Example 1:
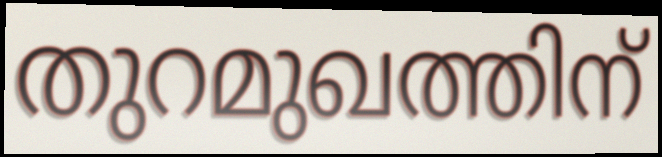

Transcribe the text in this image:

തുറമുഖത്തിന്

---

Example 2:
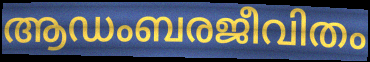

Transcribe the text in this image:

ആഡംബരജീവിതം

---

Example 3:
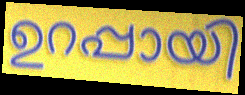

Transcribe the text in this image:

ഉറപ്പായി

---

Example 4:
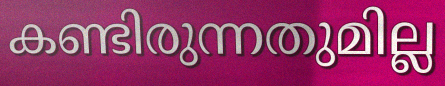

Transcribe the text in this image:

കണ്ടിരുന്നതുമില്ല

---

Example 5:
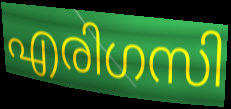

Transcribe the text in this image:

എരിഗസി